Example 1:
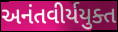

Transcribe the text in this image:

અનંતવીર્યયુક્ત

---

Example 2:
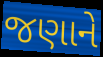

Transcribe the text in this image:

જણાને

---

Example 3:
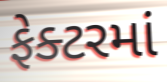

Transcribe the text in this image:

ફેક્ટરમાં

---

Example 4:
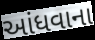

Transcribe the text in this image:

આંધવાના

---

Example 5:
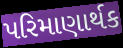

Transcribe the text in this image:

પરિમાણાર્થક